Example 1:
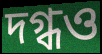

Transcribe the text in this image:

দগ্ধও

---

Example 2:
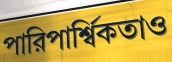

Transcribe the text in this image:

পারিপার্শ্বিকতাও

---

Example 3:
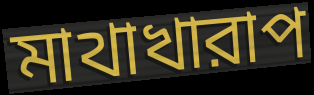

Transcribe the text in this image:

মাথাখারাপ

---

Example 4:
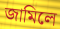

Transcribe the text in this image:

জামিলে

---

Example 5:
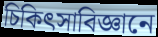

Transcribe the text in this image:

চিকিৎসাবিজ্ঞানে